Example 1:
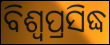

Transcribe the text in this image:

ବିଶ୍ଵପ୍ରସିଦ୍ଧ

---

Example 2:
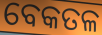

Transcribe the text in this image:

ବେକତଳ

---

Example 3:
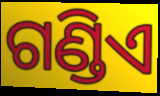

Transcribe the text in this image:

ଗଣ୍ଡିଏ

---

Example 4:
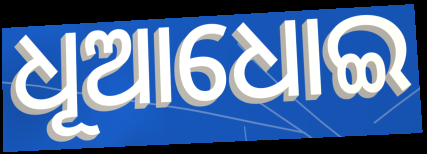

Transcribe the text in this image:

ଧୂଆଧୋଇ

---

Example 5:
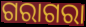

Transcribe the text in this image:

ଗରାଗରା